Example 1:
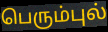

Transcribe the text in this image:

பெரும்புல்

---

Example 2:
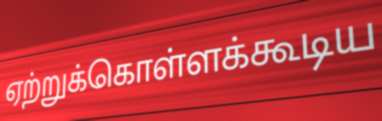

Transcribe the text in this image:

ஏற்றுக்கொள்ளக்கூடிய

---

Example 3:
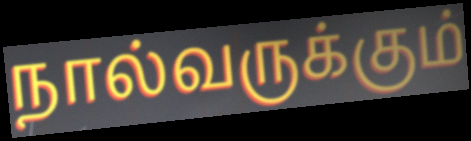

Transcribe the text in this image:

நால்வருக்கும்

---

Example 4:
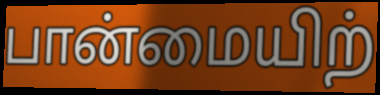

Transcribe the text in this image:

பான்மையிற்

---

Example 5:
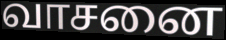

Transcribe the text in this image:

வாசனை